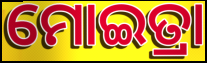
ମୋଇତ୍ରା